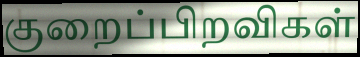
குறைப்பிறவிகள்